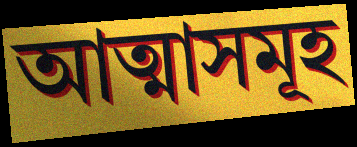
আত্মাসমূহ